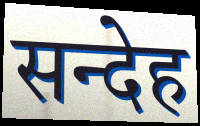
सन्देह